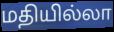
மதியில்லா